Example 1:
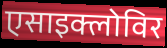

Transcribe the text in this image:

एसाइक्लोविर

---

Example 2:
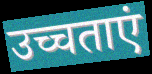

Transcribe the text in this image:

उच्चताएं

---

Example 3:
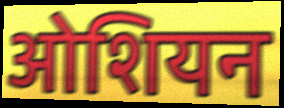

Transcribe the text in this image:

ओशियन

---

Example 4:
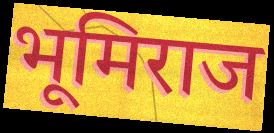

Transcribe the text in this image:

भूमिराज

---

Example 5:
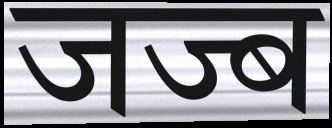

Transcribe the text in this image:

जज्ब